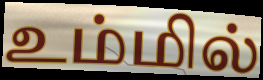
உம்மில்